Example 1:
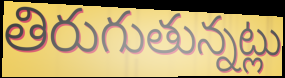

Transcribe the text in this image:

తిరుగుతున్నట్లు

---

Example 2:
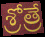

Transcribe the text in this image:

శ్రోత్రే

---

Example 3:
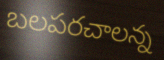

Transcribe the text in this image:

బలపరచాలన్న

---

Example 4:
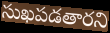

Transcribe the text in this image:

సుఖపడతారని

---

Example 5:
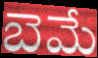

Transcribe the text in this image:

బెమే